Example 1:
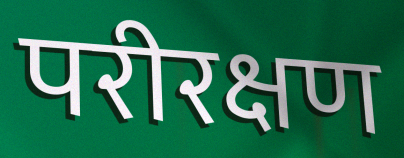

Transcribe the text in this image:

परीरक्षण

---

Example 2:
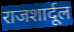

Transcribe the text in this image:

राजशार्दूल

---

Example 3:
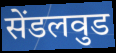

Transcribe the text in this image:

सेंडलवुड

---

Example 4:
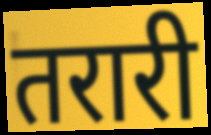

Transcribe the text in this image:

तरारी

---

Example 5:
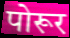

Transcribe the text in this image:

पोरूर